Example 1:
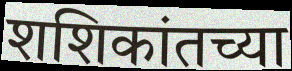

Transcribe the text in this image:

शशिकांतच्या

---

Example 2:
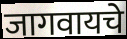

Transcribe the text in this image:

जागवायचे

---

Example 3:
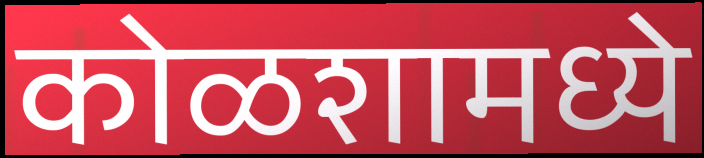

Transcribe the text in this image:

कोळशामध्ये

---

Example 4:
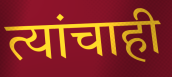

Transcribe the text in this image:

त्यांचाही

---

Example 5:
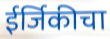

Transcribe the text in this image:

ईर्जिकीचा